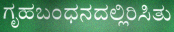
ಗೃಹಬಂಧನದಲ್ಲಿರಿಸಿತು